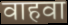
वाहवा